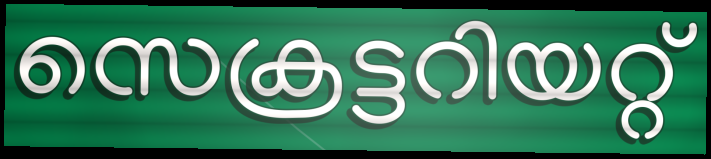
സെക്രട്ടറിയറ്റ്